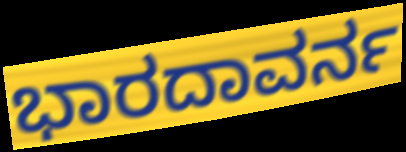
ಭಾರದಾವರ್ನ